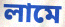
লামে